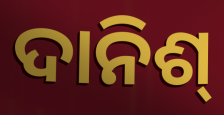
ଦାନିଶ୍